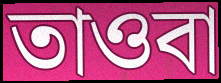
তাওবা